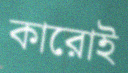
কারোই